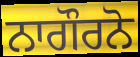
ਨਾਗੌਰਨੋ